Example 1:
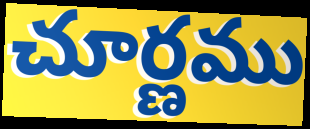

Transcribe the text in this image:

చూర్ణము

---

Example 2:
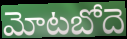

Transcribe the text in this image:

మోటబోదె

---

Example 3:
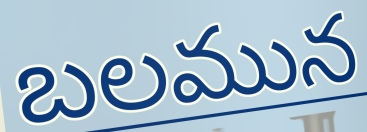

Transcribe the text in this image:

బలమున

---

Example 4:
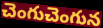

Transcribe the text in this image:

చెంగుచెంగున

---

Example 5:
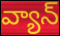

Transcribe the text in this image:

వ్యాన్